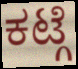
ಕಟ್ಗೆ